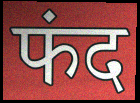
फंद